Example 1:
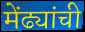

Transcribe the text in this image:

मेंढ्यांची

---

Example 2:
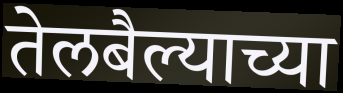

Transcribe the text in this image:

तेलबैल्याच्या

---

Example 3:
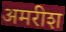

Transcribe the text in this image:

अमरीश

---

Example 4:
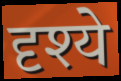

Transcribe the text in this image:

दृश्‍ये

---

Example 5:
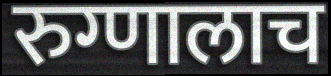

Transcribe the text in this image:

रुग्णालाच